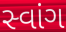
સ્વાંગ